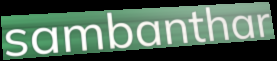
sambanthar